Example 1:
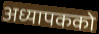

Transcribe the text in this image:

अध्यापकको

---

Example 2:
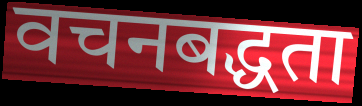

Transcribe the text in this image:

वचनबद्धता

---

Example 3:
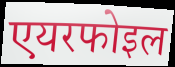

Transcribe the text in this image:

एयरफोइल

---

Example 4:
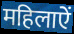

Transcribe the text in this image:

महिलाऐं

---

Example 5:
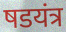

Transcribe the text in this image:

षडयंत्र